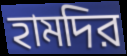
হামদির